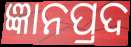
ଜ୍ଞାନପ୍ରଦ